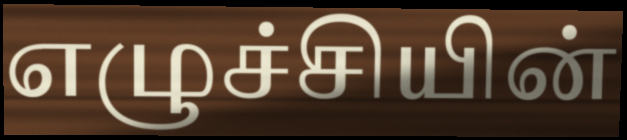
எழுச்சியின்